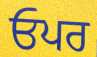
ਓਪਰ